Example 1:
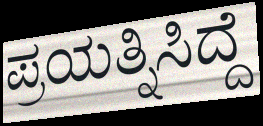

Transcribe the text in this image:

ಪ್ರಯತ್ನಿಸಿದ್ದೆ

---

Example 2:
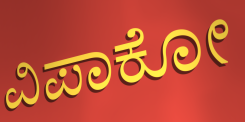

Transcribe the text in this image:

ವಿಪಾಕೋ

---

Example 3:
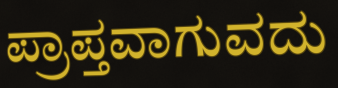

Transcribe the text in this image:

ಪ್ರಾಪ್ತವಾಗುವದು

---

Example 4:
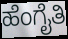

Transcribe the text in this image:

ಹೆಂಗೈತಿ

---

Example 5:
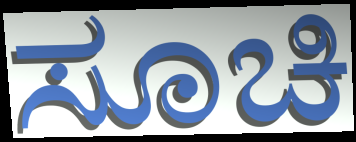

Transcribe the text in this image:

ಸೂಚಿ